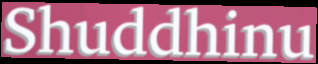
Shuddhinu